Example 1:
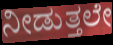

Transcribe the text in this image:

ನೀಡುತ್ತಲೇ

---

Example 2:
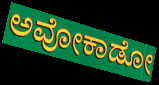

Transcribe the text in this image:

ಅವೋಕಾಡೋ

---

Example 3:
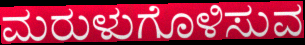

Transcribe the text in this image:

ಮರುಳುಗೊಳಿಸುವ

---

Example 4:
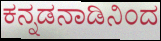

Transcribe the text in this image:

ಕನ್ನಡನಾಡಿನಿಂದ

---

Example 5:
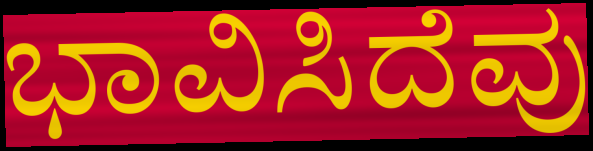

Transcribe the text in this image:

ಭಾವಿಸಿದೆವು